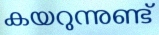
കയറുന്നുണ്ട്